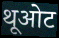
थूओट